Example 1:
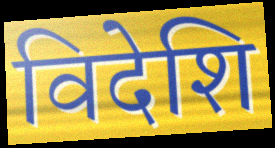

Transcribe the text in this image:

विदेशि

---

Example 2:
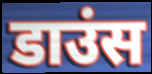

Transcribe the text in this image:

डाउंस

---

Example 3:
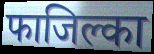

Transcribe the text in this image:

फाजिल्का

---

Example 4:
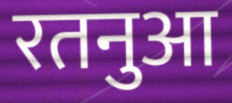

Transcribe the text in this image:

रतनुआ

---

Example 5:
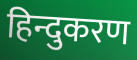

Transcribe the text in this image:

हिन्दुकरण